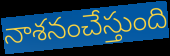
నాశనంచేస్తుంది